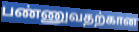
பண்ணுவதற்கான